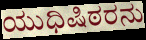
ಯುಧಿಷಿಠರನು